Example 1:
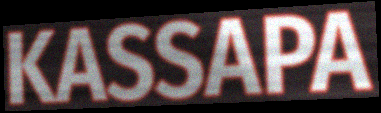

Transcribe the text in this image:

KASSAPA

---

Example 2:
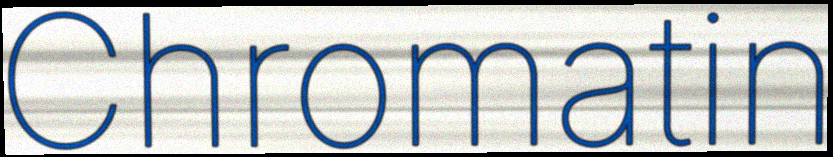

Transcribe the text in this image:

Chromatin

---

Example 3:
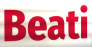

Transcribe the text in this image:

Beati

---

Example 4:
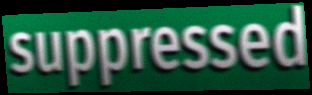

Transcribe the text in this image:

suppressed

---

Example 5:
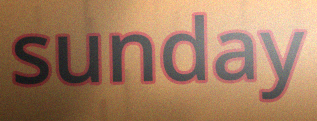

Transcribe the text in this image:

sunday